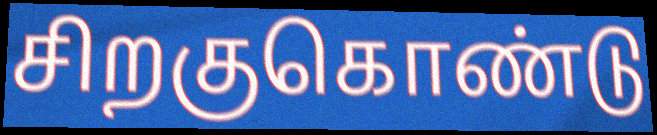
சிறகுகொண்டு